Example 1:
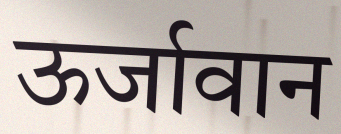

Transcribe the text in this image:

ऊर्जावान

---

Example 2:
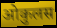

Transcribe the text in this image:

ओकुलस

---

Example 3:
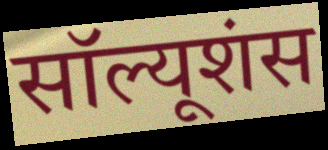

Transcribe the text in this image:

सॉल्यूशंस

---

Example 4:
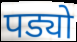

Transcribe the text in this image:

पड्यो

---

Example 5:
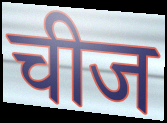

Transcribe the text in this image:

चीज